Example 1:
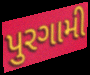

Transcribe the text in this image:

પુરગામી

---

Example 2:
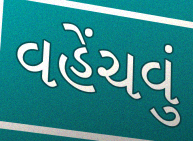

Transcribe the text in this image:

વહેંચવું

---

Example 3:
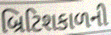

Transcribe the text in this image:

બ્રિટિશકાળની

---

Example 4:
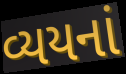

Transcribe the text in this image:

વ્યયનાં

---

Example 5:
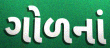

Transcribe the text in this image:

ગોળનાં